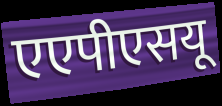
एएपीएसयू